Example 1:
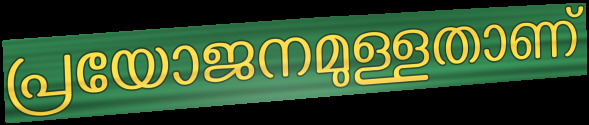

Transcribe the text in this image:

പ്രയോജനമുള്ളതാണ്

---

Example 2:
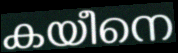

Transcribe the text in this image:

കയീനെ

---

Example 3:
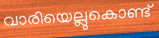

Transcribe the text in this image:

വാരിയെല്ലുകൊണ്ട്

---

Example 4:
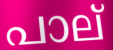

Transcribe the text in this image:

പാല്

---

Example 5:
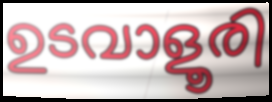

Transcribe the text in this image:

ഉടവാളൂരി